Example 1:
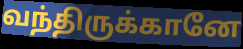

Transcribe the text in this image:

வந்திருக்கானே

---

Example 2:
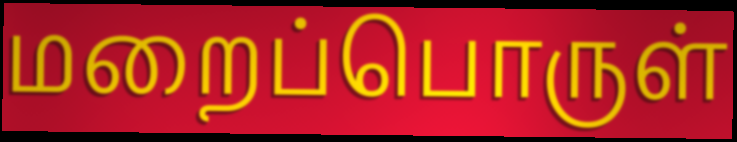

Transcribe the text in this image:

மறைப்பொருள்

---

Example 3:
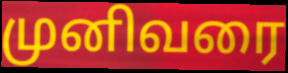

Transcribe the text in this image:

முனிவரை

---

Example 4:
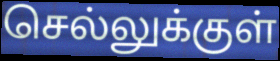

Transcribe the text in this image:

செல்லுக்குள்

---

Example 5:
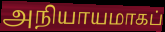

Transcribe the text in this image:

அநியாயமாகப்